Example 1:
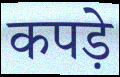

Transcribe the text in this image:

कपड़े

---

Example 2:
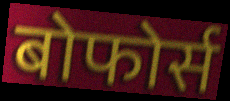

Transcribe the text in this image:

बोफोर्स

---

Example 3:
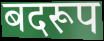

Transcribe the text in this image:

बदरूप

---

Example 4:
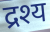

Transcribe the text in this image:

द्रश्य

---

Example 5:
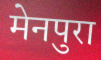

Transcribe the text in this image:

मेनपुरा